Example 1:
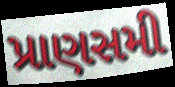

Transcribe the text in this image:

પ્રાણસમી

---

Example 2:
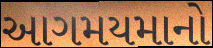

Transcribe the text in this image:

આગમયમાનો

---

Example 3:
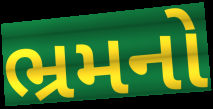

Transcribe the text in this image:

ભ્રમનો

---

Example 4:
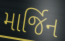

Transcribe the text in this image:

માર્જિન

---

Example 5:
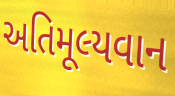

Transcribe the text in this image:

અતિમૂલ્યવાન